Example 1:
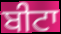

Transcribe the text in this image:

ਬੀਟਾ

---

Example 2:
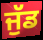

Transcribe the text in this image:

ਜੁੱਡ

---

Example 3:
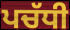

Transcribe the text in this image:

ਪਚੱਧੀ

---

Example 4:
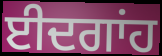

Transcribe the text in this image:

ਈਦਗਾਂਹ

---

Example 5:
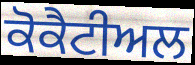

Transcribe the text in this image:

ਕੋਕੈਟੀਅਲ